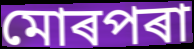
মোৰপৰা